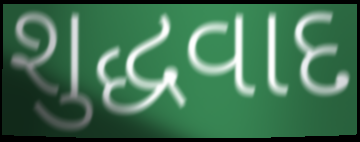
શુદ્ધવાદ